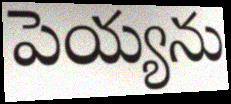
పెయ్యను